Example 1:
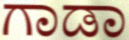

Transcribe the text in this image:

ಗಾಡಾ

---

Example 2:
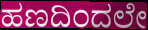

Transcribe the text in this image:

ಹಣದಿಂದಲೇ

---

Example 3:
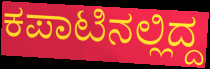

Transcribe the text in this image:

ಕಪಾಟಿನಲ್ಲಿದ್ದ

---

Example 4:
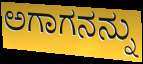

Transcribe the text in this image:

ಅಗಾಗನನ್ನು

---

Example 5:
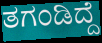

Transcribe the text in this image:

ತಗಂಡಿದ್ದೆ